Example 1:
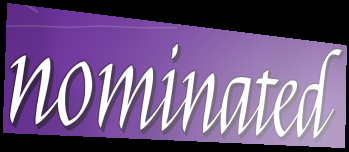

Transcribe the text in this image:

nominated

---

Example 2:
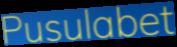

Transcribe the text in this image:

Pusulabet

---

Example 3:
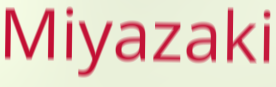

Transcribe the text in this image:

Miyazaki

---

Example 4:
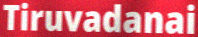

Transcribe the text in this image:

Tiruvadanai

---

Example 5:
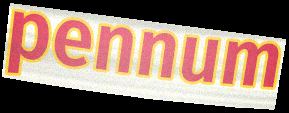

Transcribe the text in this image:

pennum